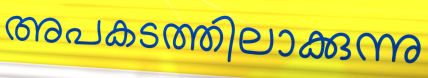
അപകടത്തിലാക്കുന്നു